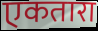
एकतारा